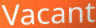
Vacant